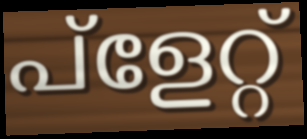
പ്ളേറ്റ്